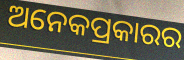
ଅନେକପ୍ରକାରର